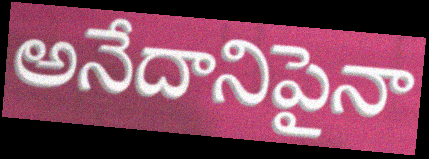
అనేదానిపైనా